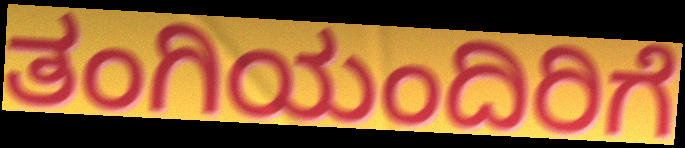
ತಂಗಿಯಂದಿರಿಗೆ